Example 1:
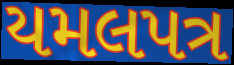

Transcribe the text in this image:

યમલપત્ર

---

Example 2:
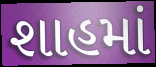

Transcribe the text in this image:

શાહમાં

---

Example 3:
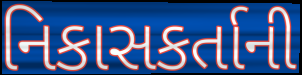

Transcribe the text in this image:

નિકાસકર્તાની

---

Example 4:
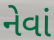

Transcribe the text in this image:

નેવાં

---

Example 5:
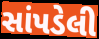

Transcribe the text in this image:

સાંપડેલી